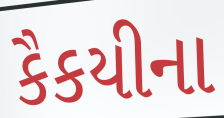
કૈકયીના